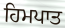
ਹਿਮਪਾਤ